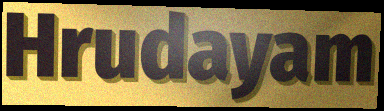
Hrudayam